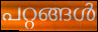
പറ്റങ്ങൾ